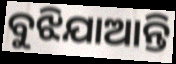
ବୁଝିଯାଆନ୍ତି